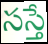
సస్తే